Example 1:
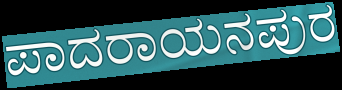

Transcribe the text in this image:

ಪಾದರಾಯನಪುರ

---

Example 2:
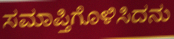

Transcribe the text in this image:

ಸಮಾಪ್ತಿಗೊಳಿಸಿದನು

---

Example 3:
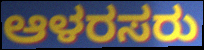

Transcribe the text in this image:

ಆಳರಸರು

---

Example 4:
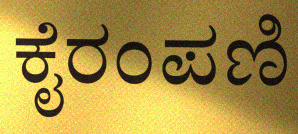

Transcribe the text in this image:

ಕೈರಂಪಣಿ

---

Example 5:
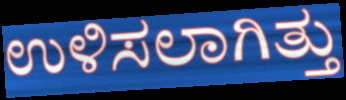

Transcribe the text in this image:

ಉಳಿಸಲಾಗಿತ್ತು